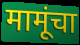
मामूंचा